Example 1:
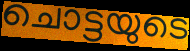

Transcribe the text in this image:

ചൊട്ടയുടെ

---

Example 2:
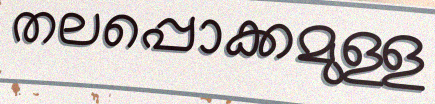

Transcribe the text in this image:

തലപ്പൊക്കമുള്ള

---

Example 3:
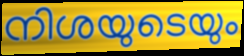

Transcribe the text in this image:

നിശയുടെയും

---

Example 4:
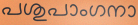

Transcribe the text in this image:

പശുപാംഗനാ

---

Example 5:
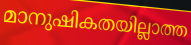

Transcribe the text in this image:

മാനുഷികതയില്ലാത്ത